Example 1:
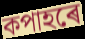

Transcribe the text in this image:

কপাহৰে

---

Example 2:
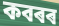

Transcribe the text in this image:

কবৰৰ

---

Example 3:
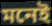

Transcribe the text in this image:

মনেই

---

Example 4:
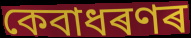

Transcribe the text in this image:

কেবাধৰণৰ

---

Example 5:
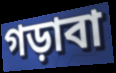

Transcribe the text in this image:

গড়াবা